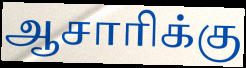
ஆசாரிக்கு